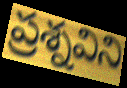
ప్రశ్నవిని